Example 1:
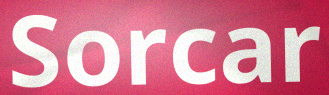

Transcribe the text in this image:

Sorcar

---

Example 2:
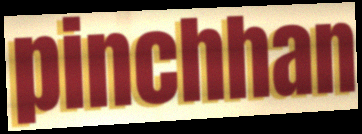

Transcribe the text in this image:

pinchhan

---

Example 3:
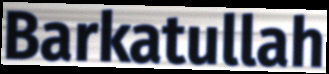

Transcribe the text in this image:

Barkatullah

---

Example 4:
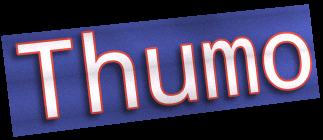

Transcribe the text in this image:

Thumo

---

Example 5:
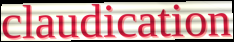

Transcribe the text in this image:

claudication